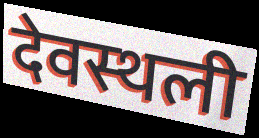
देवस्थली